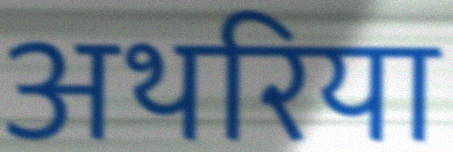
अथरिया